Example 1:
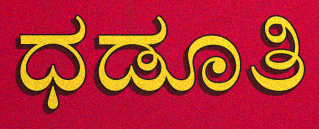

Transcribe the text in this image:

ಧಡೂತಿ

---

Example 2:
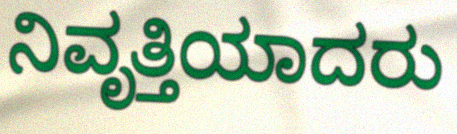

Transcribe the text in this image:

ನಿವೃತ್ತಿಯಾದರು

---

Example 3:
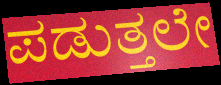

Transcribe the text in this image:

ಪಡುತ್ತಲೇ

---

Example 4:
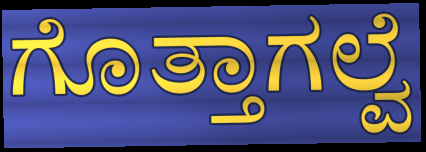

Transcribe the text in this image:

ಗೊತ್ತಾಗಲ್ವೆ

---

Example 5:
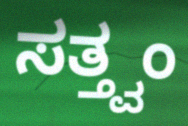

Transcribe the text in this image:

ಸತ್ತ್ವಂ